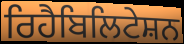
ਰਿਹੈਬਿਲਿਟੇਸ਼ਨ